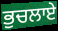
ਭੁਚਲਾਏ